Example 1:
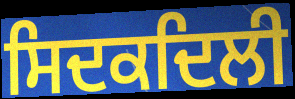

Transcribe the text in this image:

ਸਿਦਕਦਿਲੀ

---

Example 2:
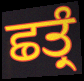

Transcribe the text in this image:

ਛਤ੍ਰੰ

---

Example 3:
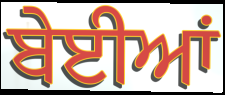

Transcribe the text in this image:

ਬੇਈਆਂ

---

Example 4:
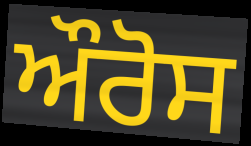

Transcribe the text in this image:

ਔਰੋਸ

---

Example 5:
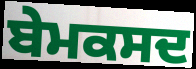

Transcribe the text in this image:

ਬੇਮਕਸਦ